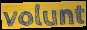
volunt